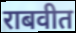
राबवीत